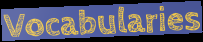
Vocabularies